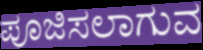
ಪೂಜಿಸಲಾಗುವ